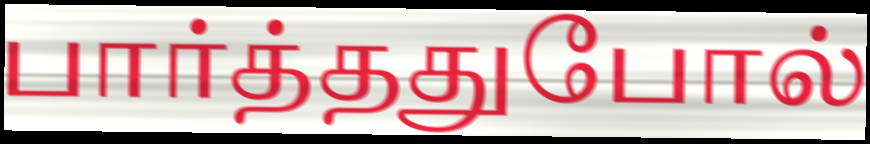
பார்த்ததுபோல்